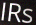
IRs